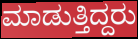
ಮಾಡುತ್ತಿದ್ದರು